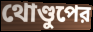
থোণ্ডুপের